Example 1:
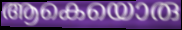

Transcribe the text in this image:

ആകെയൊരു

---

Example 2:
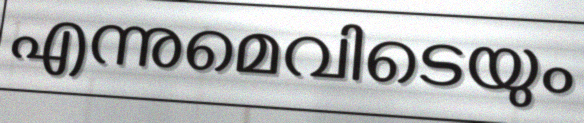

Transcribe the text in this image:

എന്നുമെവിടെയും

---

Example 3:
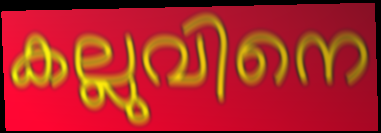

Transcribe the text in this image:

കല്ലുവിനെ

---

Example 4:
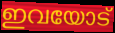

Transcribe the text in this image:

ഇവയോട്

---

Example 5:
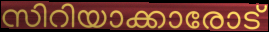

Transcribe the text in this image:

സിറിയാക്കാരോട്